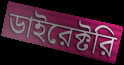
ডাইরেক্টরি